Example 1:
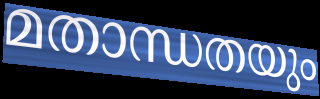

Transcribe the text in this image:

മതാന്ധതയും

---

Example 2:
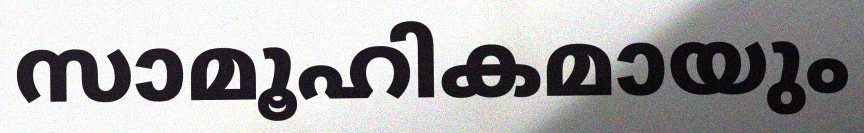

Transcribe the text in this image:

സാമൂഹികമായും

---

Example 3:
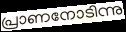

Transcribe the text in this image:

പ്രാണനോടിന്നു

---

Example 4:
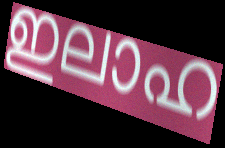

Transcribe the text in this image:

ഇലാഹ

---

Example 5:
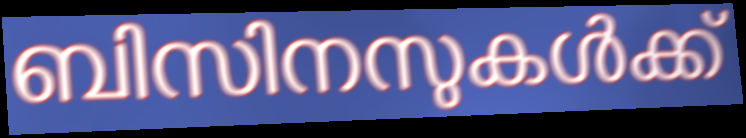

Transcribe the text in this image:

ബിസിനസുകൾക്ക്